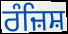
ਰੰਜ਼ਿਸ਼